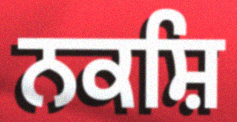
ਨਕਸ਼ਿ